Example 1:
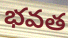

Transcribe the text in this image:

భవత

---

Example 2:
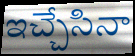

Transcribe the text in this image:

ఇచ్చేసినా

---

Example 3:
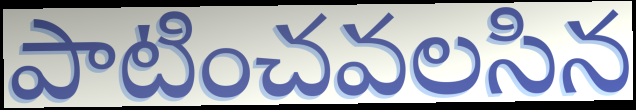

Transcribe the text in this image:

పాటించవలసిన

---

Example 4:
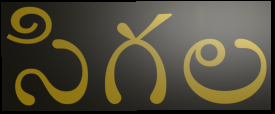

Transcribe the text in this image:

సిగల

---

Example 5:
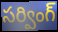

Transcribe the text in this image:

సర్వింగ్